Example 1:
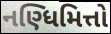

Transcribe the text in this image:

નણ્ધિમિત્તો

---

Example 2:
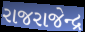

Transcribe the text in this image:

રાજરાજેન્દ્ર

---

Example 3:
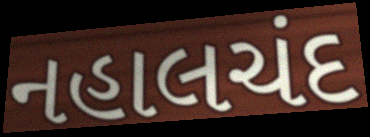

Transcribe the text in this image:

નહાલચંદ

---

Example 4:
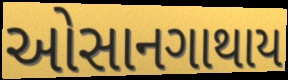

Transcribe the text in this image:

ઓસાનગાથાય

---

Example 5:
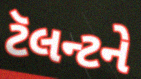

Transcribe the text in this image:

ટૅલન્ટને